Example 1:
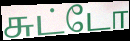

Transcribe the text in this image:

சுட்டோ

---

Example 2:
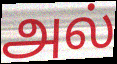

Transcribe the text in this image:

அல்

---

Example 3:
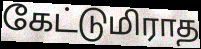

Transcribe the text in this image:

கேட்டுமிராத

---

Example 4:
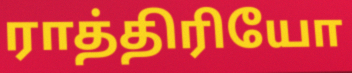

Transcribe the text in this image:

ராத்திரியோ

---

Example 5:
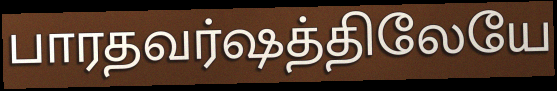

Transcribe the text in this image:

பாரதவர்ஷத்திலேயே